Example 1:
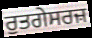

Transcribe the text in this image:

ਰੁਤਗੇਸਰਜ਼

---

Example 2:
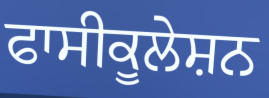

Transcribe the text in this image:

ਫਾਸੀਕੂਲੇਸ਼ਨ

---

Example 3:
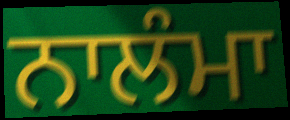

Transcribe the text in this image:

ਨਾਲੰਮਾ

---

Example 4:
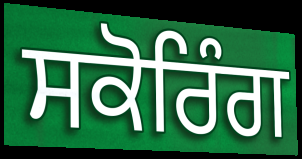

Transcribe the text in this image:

ਸਕੋਰਿੰਗ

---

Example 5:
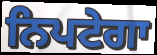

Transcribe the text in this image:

ਨਿਪਟੇਗਾ